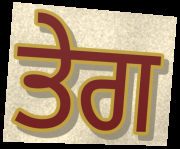
ਤੇਗ